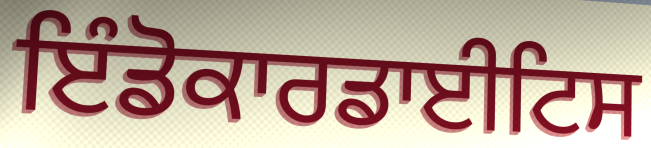
ਇੰਡੋਕਾਰਡਾਈਟਿਸ